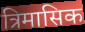
त्रिमासिक